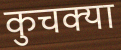
कुचक्या